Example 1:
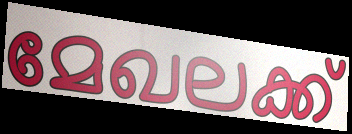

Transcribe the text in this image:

മേഖലക്ക്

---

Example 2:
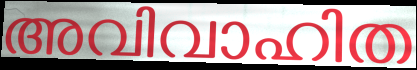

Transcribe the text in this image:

അവിവാഹിത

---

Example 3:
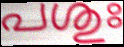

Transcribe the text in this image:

പശുഃ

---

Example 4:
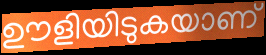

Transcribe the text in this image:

ഊളിയിടുകയാണ്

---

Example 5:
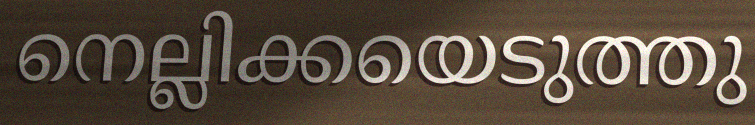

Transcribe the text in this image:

നെല്ലിക്കയെടുത്തു